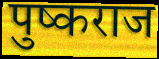
पुष्कराज